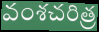
వంశచరిత్ర